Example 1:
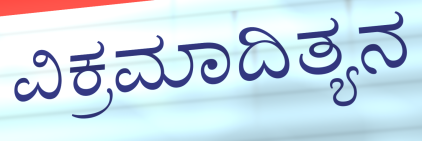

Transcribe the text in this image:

ವಿಕ್ರಮಾದಿತ್ಯನ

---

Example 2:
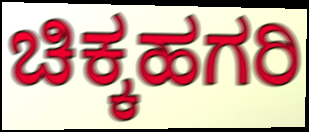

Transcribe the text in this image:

ಚಿಕ್ಕಹಗರಿ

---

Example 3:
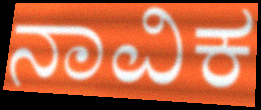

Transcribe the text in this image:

ನಾವಿಕ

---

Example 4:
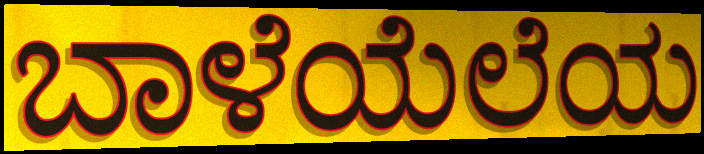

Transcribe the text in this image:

ಬಾಳೆಯೆಲೆಯ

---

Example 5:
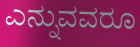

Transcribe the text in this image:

ಎನ್ನುವವರೂ